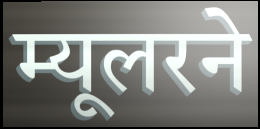
म्यूलरने